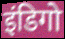
इंडिगो